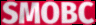
SMOBC